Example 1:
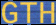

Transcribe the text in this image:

GTH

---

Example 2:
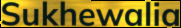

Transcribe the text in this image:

Sukhewalia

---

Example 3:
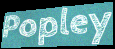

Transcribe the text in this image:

Popley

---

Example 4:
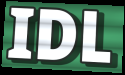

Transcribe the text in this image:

IDL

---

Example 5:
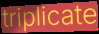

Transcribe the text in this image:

triplicate